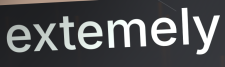
extemely